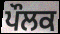
ਪੌਲਕ